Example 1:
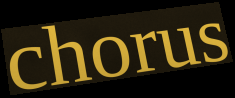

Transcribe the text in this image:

chorus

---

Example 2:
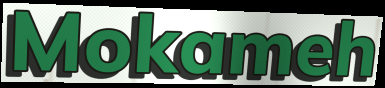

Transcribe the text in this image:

Mokameh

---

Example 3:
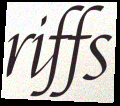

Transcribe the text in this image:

riffs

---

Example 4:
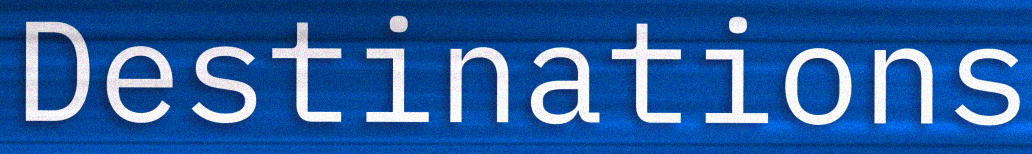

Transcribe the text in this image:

Destinations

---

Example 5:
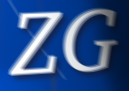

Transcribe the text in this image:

ZG